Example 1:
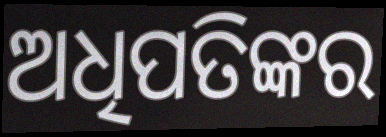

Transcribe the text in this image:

ଅଧିପତିଙ୍କର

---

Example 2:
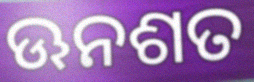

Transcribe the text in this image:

ଊନଶତ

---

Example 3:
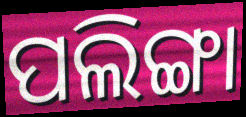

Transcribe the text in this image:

ପଲିଙ୍ଗା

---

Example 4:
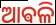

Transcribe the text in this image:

ଆଵଳି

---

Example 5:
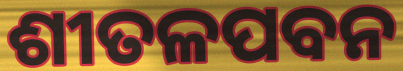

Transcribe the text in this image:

ଶୀତଳପବନ